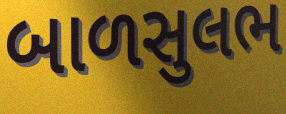
બાળસુલભ